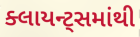
ક્લાયન્ટ્સમાંથી